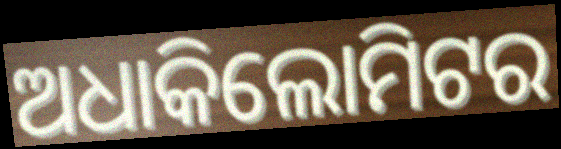
ଅଧାକିଲୋମିଟର